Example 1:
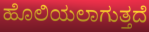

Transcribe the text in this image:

ಹೊಲಿಯಲಾಗುತ್ತದೆ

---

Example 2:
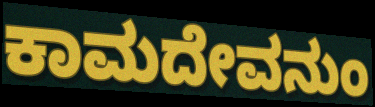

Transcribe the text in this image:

ಕಾಮದೇವನುಂ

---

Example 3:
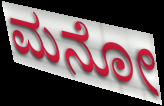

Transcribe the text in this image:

ಮನೋ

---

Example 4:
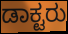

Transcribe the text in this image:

ಡಾಕ್ಟರು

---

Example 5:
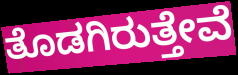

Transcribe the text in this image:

ತೊಡಗಿರುತ್ತೇವೆ